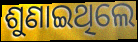
ଶୁଣାଇଥିଲେ